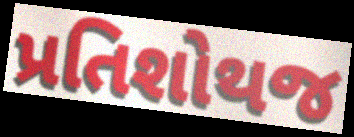
પ્રતિશોથજ